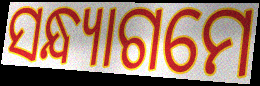
ସନ୍ଧ୍ୟାଗମେ